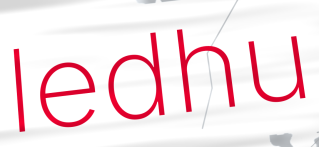
ledhu